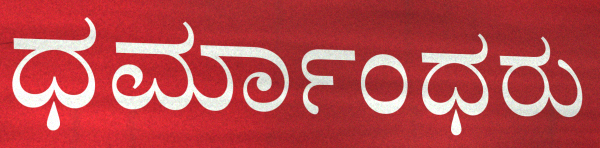
ಧರ್ಮಾಂಧರು